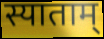
स्याताम्